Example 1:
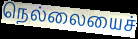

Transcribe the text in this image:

நெல்லையைச்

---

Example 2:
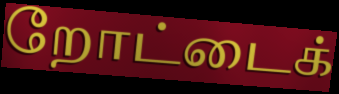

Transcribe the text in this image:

றோட்டைக்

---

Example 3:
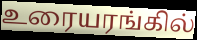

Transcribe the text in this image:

உரையரங்கில்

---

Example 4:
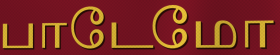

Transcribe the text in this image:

பாடேமோ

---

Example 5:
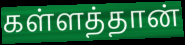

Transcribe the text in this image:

கள்ளத்தான்